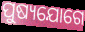
ପୁଷ୍ୟଯୋଗେ